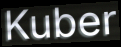
Kuber